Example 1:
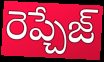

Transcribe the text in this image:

రెప్చేజ్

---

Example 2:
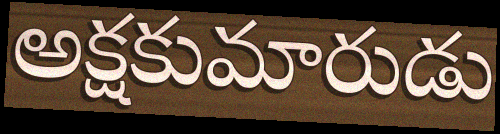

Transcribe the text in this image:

అక్షకుమారుడు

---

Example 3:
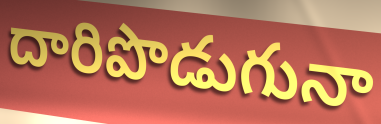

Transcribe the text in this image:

దారిపొడుగునా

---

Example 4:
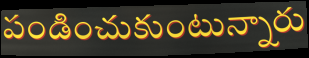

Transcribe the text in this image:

పండించుకుంటున్నారు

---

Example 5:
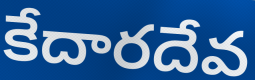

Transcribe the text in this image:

కేదారదేవ